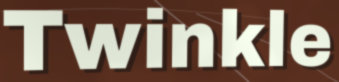
Twinkle